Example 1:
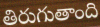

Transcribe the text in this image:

తిరుగుతాంది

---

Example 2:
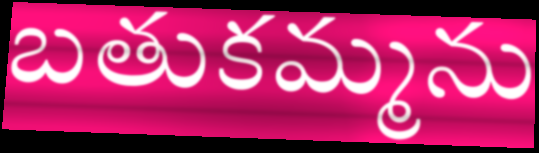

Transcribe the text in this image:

బతుకమ్మను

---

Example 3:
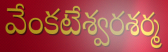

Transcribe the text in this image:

వేంకటేశ్వరశర్మ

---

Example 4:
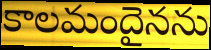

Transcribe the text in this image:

కాలమందైనను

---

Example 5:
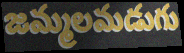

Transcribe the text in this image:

జమ్మలమడుగు